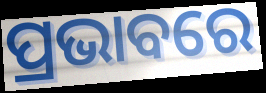
ପ୍ରଭାବରେ